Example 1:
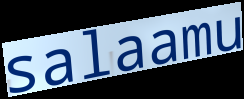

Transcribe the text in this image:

salaamu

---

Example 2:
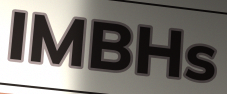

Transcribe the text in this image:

IMBHs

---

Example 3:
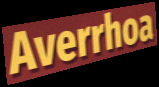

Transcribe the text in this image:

Averrhoa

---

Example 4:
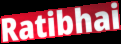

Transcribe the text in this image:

Ratibhai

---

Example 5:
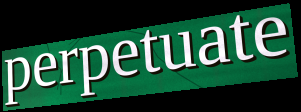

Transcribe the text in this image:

perpetuate